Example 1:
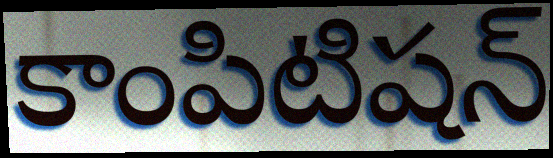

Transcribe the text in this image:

కాంపిటిషన్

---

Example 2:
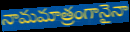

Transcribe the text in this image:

నామమాత్రంగానైనా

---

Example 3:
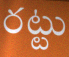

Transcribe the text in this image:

రట్టు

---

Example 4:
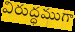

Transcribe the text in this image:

విరుద్ధముగా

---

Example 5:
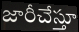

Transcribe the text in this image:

జారీచేస్తూ